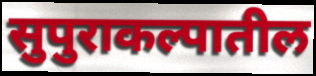
सुपुराकल्पातील